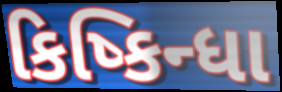
કિષ્કિન્ધા